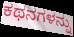
ಕಥನಗಳನ್ನು